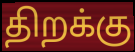
திறக்கு